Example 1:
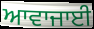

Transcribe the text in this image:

ਆਵਾਜਾਈ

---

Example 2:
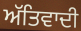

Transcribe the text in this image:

ਅੱਤਿਵਾਦੀ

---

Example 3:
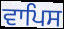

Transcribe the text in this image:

ਵਾਪਿਸ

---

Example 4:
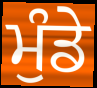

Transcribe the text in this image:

ਮੁੰਡੇ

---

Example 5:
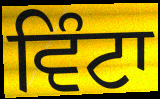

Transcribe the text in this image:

ਵਿੰਟਾ